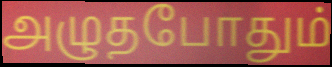
அழுதபோதும்